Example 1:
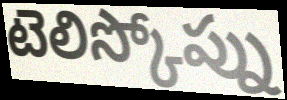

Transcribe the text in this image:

టెలిస్కోప్ను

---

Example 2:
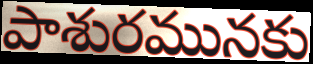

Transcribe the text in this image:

పాశురమునకు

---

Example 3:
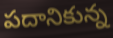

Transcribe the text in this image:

పదానికున్న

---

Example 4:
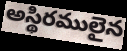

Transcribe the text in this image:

అస్థిరములైన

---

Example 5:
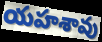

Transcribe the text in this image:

యహశావు